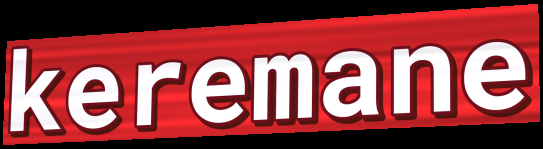
keremane